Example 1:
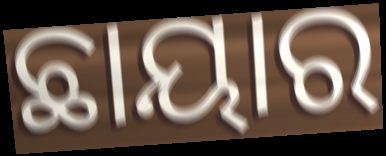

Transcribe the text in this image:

ଛାୟାର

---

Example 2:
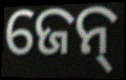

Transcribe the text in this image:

ଜେନ୍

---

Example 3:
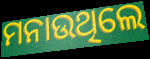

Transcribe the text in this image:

ମନାଉଥିଲେ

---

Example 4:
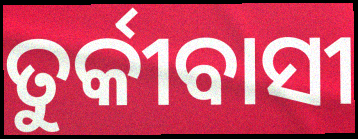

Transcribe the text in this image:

ତୁର୍କୀବାସୀ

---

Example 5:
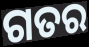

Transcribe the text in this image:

ଗତର